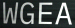
WGEA